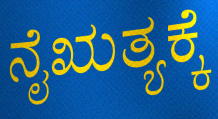
ನೈಋತ್ಯಕ್ಕೆ